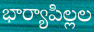
భార్యాపిల్లల